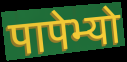
पापेभ्यो